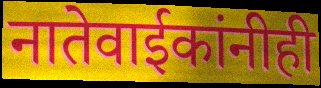
नातेवाईकांनीही